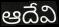
ఆదేవి